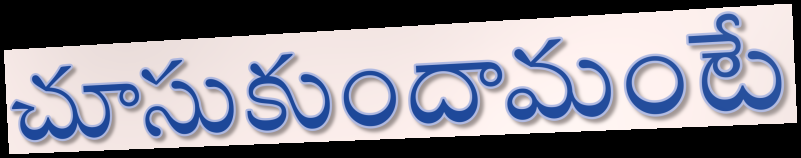
చూసుకుందామంటే